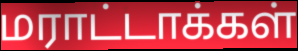
மராட்டாக்கள்